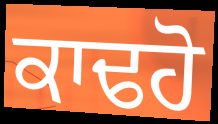
ਕਾਢਹੋ